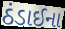
ઠંડાઈના